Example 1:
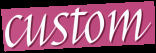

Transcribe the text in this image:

custom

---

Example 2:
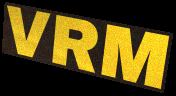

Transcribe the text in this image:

VRM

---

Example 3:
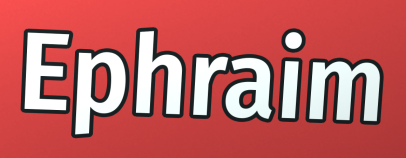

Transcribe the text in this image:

Ephraim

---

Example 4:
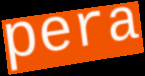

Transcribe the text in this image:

pera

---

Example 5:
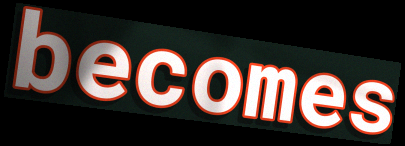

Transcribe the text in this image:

becomes